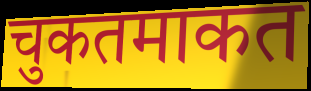
चुकतमाकत